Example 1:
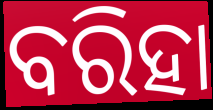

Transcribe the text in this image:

ବରିହା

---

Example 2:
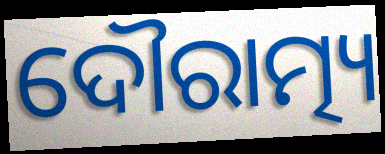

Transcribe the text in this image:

ଦୌରାତ୍ମ୍ୟ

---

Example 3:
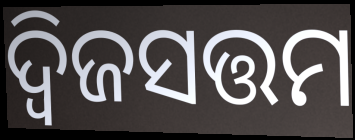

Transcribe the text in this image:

ଦ୍ୱିଜସତ୍ତମ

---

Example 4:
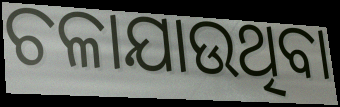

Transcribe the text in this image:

ଚଳାଯାଉଥିବା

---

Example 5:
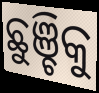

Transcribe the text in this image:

ଛୁଞ୍ଚିକୁ